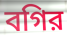
বগির